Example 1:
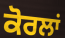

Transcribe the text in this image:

ਕੋਰਲਾਂ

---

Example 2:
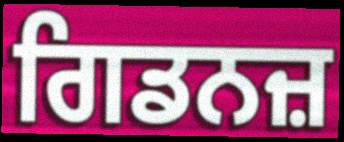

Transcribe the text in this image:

ਗਿਡਨਜ਼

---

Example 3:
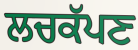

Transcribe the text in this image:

ਲਚਕੱਪਣ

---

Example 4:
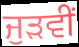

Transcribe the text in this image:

ਜੁੜਵੀਂ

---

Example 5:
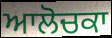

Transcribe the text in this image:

ਆਲੋਚਕਾ